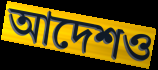
আদেশও